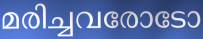
മരിച്ചവരോടോ